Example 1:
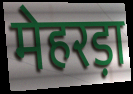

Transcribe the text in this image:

मेहरड़ा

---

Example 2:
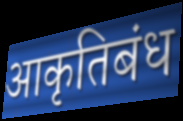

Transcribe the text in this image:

आकृतिबंध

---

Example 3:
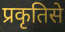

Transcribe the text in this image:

प्रकृतिसे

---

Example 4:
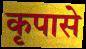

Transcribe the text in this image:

कृपासे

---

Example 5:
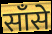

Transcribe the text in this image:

साँसे